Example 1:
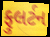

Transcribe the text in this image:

ફુલર્ટન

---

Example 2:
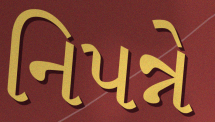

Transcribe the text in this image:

નિપન્ને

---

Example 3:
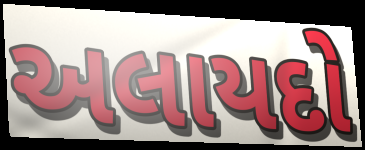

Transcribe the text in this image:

અલાયદો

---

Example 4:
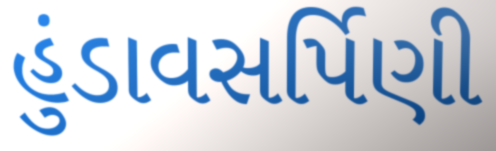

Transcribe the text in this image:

હુંડાવસર્પિણી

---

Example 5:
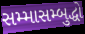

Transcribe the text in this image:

સમ્માસમ્બુદ્ધો